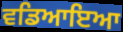
ਵਡਿਆਇਆ